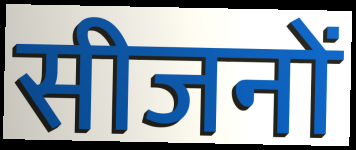
सीजनों